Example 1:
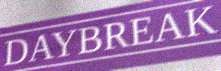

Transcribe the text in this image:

DAYBREAK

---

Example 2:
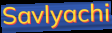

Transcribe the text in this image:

Savlyachi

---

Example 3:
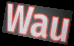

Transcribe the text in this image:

Wau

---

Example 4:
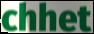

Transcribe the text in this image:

chhet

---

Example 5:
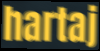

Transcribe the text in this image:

hartaj